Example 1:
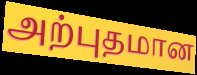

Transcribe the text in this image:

அற்புதமான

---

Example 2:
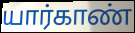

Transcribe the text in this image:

யார்காண்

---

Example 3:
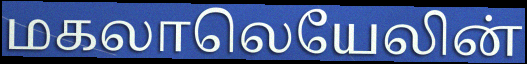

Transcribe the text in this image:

மகலாலெயேலின்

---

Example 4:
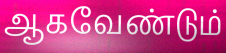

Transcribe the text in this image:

ஆகவேண்டும்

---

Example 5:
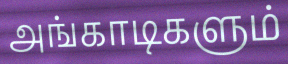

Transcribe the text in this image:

அங்காடிகளும்